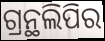
ଗ୍ରନ୍ଥଲିପିର